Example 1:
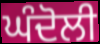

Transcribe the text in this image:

ਘੰਦੋਲੀ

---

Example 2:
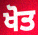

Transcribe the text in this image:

ਖੋਤ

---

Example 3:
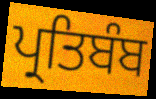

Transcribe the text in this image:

ਪ੍ਰਤਿਬੰਬ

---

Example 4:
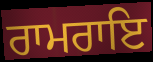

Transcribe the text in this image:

ਰਾਮਰਾਇ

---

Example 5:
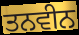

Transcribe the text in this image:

ਤਨਵੀਨ